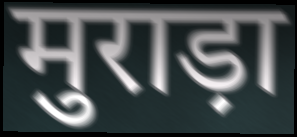
मुराड़ा